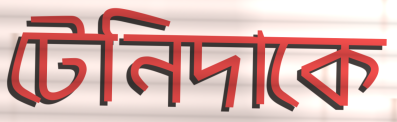
টেনিদাকে